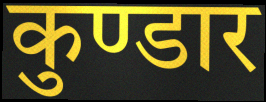
कुण्डार